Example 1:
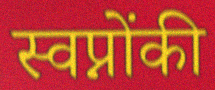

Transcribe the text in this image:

स्वप्नोंकी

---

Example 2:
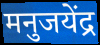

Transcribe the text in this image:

मनुजयेंद्र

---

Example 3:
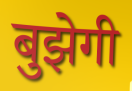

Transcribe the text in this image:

बुझेगी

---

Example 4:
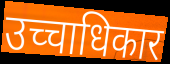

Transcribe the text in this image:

उच्चाधिकार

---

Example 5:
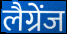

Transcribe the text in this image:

लैग्रेंज